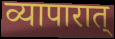
व्यापारात्